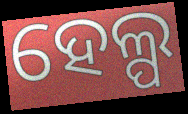
ହେଲ୍ପ